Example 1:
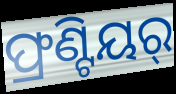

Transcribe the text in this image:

ଫ୍ରଣ୍ଟିୟର୍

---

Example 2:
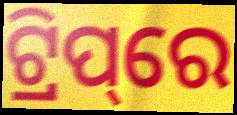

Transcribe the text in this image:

ଟ୍ରିପ୍‌ରେ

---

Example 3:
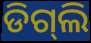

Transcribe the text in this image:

ଡିଗ୍‌ଲି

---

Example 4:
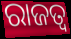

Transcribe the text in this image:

ରାଜତ୍ଵ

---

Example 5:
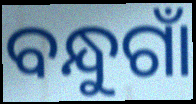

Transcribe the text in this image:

ବନ୍ଧୁଗାଁ